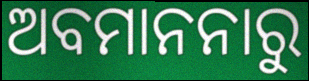
ଅବମାନନାରୁ